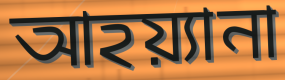
আহয়্যানা